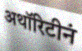
अथॉरिटीनं